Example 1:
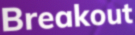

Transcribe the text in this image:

Breakout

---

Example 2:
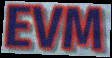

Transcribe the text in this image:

EVM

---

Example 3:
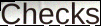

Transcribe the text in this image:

Checks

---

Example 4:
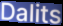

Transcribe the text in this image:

Dalits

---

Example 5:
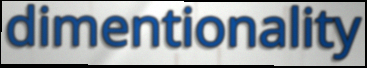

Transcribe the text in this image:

dimentionality